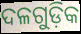
ଦଳଗୁଡ଼ିକ